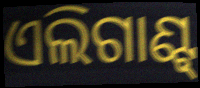
ଏଲିଗାଣ୍ଟ୍